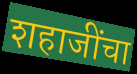
शहाजींचा